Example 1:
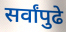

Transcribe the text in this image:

सर्वांपुढे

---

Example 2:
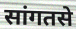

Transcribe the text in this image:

सांगतसे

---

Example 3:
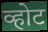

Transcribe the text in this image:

व्होट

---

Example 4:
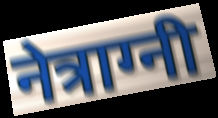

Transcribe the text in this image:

नेत्राग्नी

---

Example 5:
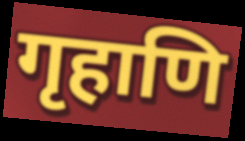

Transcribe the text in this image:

गृहाणि